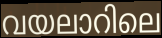
വയലാറിലെ